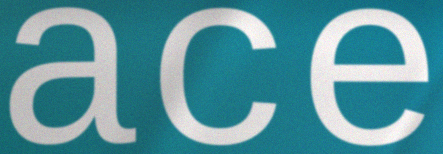
ace